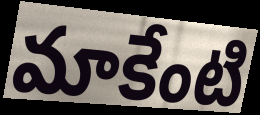
మాకేంటి